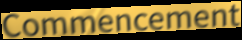
Commencement